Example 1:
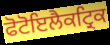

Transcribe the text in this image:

ਫੋਟੋਇਲੈਕਟ੍ਰਿਕ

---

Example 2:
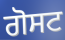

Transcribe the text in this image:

ਗੋਸਟ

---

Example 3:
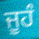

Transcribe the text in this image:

ਜੂਹੰ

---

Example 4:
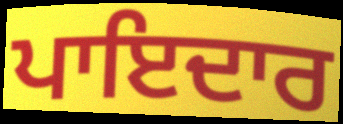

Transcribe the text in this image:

ਪਾਇਦਾਰ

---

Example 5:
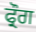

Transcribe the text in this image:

ਫ੍ਰੌਗ